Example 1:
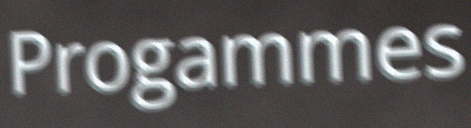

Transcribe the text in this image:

Progammes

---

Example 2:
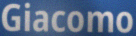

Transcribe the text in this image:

Giacomo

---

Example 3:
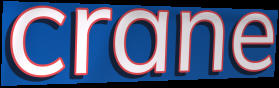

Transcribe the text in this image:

crane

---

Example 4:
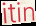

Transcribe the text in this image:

itin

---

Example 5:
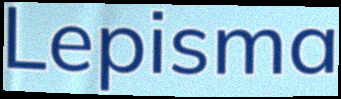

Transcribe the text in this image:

Lepisma